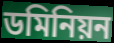
ডমিনিয়ন